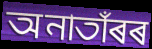
অনাতাঁৰৰ